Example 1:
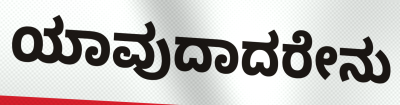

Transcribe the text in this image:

ಯಾವುದಾದರೇನು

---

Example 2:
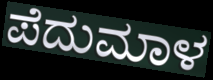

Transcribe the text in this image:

ಪೆದುಮಾಳ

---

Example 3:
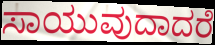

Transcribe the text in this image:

ಸಾಯುವುದಾದರೆ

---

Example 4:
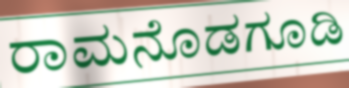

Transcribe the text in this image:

ರಾಮನೊಡಗೂಡಿ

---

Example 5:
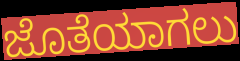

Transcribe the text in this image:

ಜೊತೆಯಾಗಲು